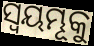
ସ୍ଵୟମ୍ଭୂକୁ